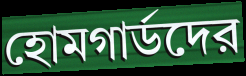
হোমগার্ডদের